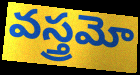
వస్త్రమో